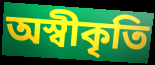
অস্বীকৃতি